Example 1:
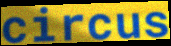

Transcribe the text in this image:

circus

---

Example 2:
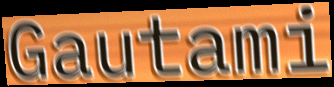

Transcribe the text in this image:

Gautami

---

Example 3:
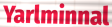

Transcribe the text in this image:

Yarlminnal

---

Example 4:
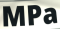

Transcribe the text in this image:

MPa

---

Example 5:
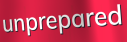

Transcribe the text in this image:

unprepared